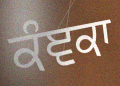
ਕੰਞਕਾ